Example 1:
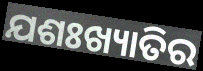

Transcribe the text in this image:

ଯଶଃଖ୍ୟାତିର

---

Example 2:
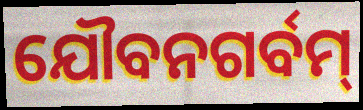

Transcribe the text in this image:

ଯୌବନଗର୍ବମ୍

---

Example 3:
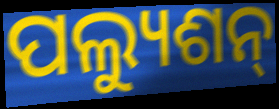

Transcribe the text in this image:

ପଲ୍ୟୁଶନ୍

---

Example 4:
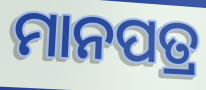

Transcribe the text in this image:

ମାନପତ୍ର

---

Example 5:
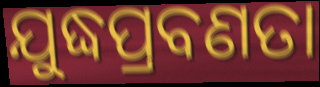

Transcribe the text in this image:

ଯୁଦ୍ଧପ୍ରବଣତା